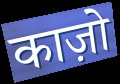
काज़ो